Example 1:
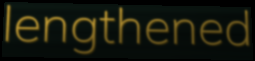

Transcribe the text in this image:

lengthened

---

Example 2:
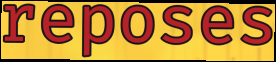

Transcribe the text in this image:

reposes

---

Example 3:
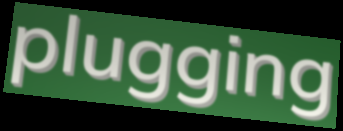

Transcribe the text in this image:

plugging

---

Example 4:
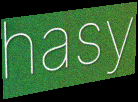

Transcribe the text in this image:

hasy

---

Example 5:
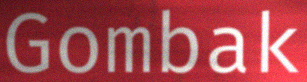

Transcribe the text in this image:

Gombak